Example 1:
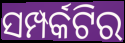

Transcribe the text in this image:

ସମ୍ପର୍କଟିର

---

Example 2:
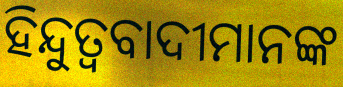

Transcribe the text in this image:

ହିନ୍ଦୁତ୍ଵବାଦୀମାନଙ୍କ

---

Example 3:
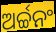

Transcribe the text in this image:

ଅର୍ଚ୍ଚନଂ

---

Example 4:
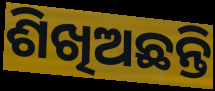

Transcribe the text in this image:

ଶିଖିଅଛନ୍ତି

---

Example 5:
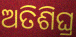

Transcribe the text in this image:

ଅତିଶିଘ୍ର